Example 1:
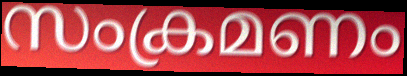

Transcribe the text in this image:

സംക്രമണം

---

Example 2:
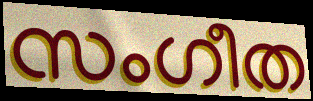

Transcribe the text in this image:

സംഗീത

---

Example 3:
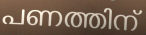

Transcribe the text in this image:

പണത്തിന്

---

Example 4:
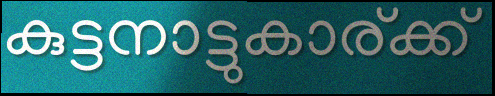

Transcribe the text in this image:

കുട്ടനാട്ടുകാര്ക്ക്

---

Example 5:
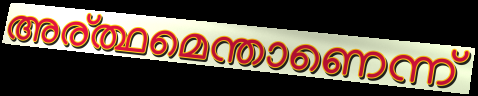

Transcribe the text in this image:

അര്ത്ഥമെന്താണെന്ന്